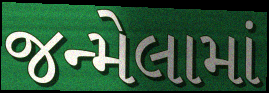
જન્મેલામાં